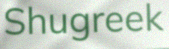
Shugreek